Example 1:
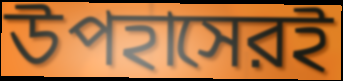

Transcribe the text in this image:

উপহাসেরই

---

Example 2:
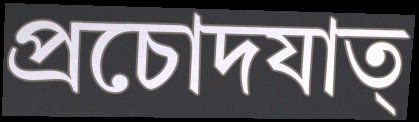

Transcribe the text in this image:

প্রচোদযাত্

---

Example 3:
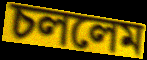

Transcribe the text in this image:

চললেম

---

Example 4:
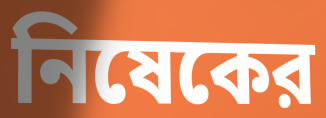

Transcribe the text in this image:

নিষেকের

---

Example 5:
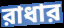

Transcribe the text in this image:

রাধার